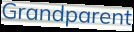
Grandparent